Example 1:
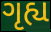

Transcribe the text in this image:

ગૃહ્ય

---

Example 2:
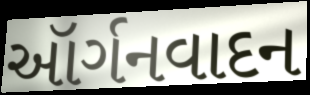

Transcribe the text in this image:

ઑર્ગનવાદન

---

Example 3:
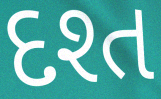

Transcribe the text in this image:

દશ્ત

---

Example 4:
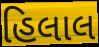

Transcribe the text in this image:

હિલાલ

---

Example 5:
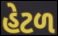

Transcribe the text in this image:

હેટળ